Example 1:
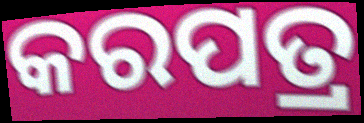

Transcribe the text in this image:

କରପତ୍ର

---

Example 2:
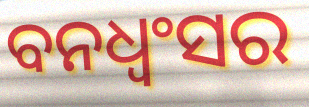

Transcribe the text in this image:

ବନଧ୍ଵଂସର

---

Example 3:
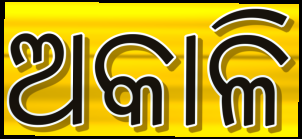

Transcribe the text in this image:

ଅକାଳି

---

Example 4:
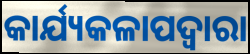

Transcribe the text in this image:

କାର୍ଯ୍ୟକଳାପଦ୍ବାରା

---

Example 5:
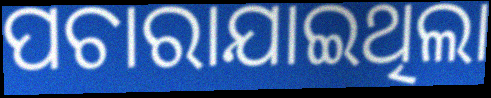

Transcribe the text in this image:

ପଚାରାଯାଇଥିଲା